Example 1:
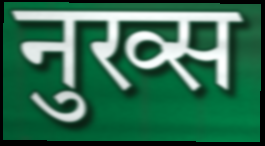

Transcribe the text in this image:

नुख्स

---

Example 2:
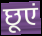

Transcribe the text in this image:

छूएं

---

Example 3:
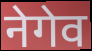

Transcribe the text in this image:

नेगेव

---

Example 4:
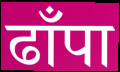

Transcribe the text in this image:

ढाँपा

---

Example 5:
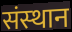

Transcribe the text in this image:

संस्‍थान